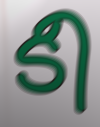
ടീ